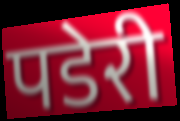
पडेरी